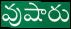
వుషారు